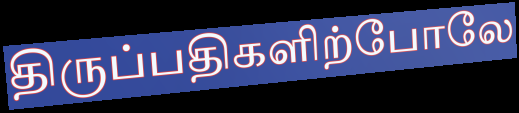
திருப்பதிகளிற்போலே